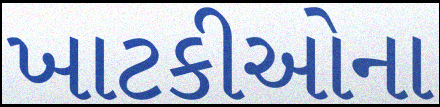
ખાટકીઓના